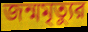
জন্মমৃত্যুর